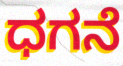
ಧಗನೆ